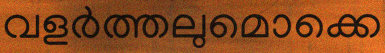
വളർത്തലുമൊക്കെ